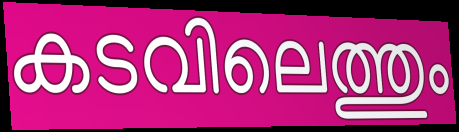
കടവിലെത്തും